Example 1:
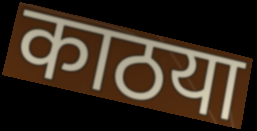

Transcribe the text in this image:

काठया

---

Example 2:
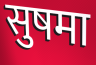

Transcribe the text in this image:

सुषमा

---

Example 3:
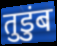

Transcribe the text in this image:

तुडुंब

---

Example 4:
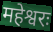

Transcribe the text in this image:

महेश्वरः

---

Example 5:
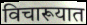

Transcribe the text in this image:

विचारूयात